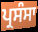
ਪ੍ਰਸੰਸਾ